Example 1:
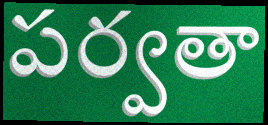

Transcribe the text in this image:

పర్వతా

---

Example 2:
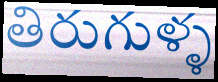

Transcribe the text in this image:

తిరుగుళ్ళ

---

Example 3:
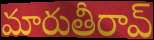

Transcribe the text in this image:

మారుతీరావ్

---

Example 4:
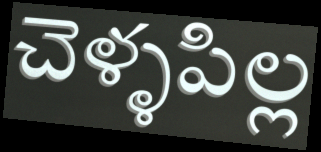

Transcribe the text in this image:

చెళ్ళపిల్ల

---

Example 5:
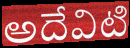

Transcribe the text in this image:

అదేవిటి